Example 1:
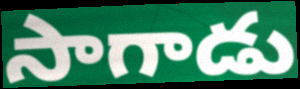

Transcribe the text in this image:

సాగాడు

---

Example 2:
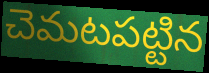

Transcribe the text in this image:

చెమటపట్టిన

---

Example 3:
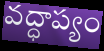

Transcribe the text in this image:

వద్ధాప్యం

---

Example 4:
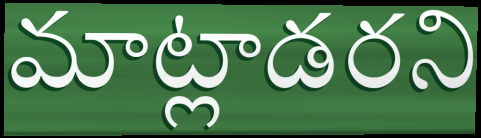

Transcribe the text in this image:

మాట్లాడరని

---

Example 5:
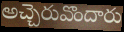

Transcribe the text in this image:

అచ్చెరువొందారు